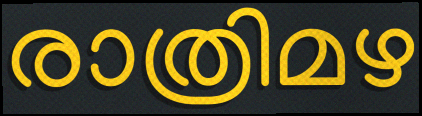
രാത്രിമഴ